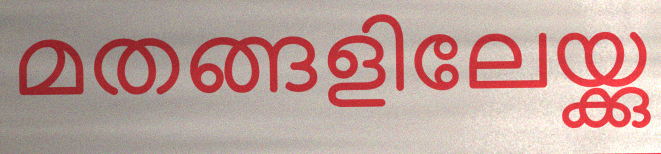
മതങ്ങളിലേയ്ക്കു